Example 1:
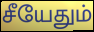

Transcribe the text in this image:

சீயேதும்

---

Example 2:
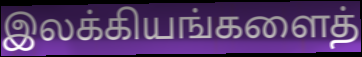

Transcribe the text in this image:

இலக்கியங்களைத்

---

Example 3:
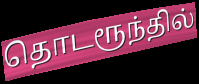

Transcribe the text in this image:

தொடரூந்தில்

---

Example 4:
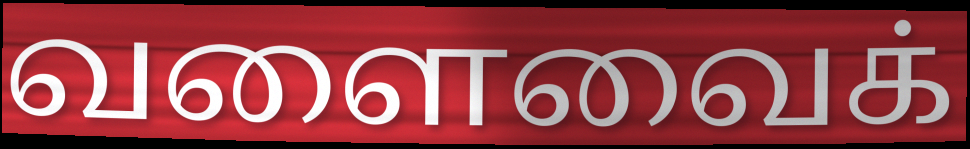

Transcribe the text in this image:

வளைவைக்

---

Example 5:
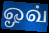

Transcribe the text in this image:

ஓவ்